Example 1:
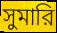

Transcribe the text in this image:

সুমারি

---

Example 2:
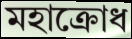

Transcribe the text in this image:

মহাক্রোধ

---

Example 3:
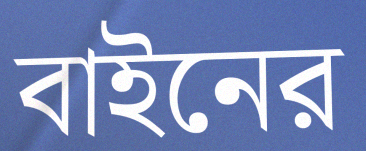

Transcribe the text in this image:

বাইনের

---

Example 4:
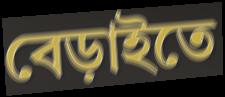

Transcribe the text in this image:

বেড়াইতে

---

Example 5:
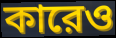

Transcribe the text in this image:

কারেও